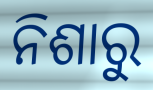
ନିଶାରୁ